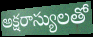
అక్షరాస్యులతో